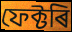
ফেক্টৰি